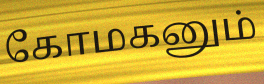
கோமகனும்